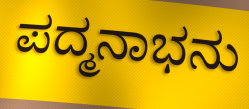
ಪದ್ಮನಾಭನು